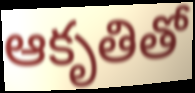
ఆకృతితో